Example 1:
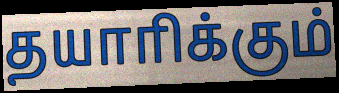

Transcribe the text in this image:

தயாரிக்கும்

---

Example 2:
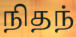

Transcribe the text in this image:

நிதந்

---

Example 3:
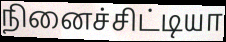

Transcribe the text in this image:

நினைச்சிட்டியா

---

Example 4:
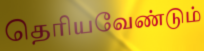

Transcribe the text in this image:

தெரியவேண்டும்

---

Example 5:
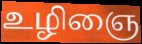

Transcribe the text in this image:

உழிஞை